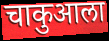
चाकुआला